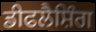
ਡੀਫਲੈਸ਼ਿੰਗ